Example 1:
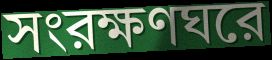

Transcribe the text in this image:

সংরক্ষণঘরে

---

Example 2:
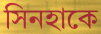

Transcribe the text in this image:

সিনহাকে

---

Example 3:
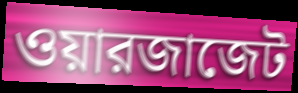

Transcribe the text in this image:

ওয়ারজাজেট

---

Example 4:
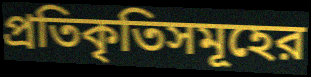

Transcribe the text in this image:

প্রতিকৃতিসমূহের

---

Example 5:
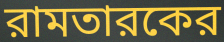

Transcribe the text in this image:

রামতারকের